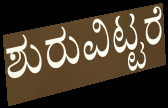
ಶುರುವಿಟ್ಟರೆ